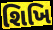
શિખિ